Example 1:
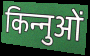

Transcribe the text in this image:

किन्नुओं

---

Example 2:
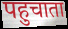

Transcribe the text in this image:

पहुचाता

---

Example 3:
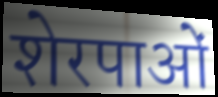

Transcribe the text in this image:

शेरपाओं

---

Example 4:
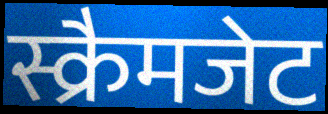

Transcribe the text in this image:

स्‍क्रैमजेट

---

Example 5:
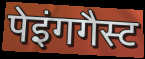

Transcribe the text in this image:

पेइंगगैस्ट